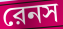
রেনস